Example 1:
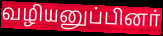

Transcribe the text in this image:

வழியனுப்பினர்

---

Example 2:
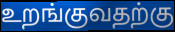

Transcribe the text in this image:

உறங்குவதற்கு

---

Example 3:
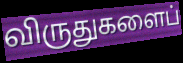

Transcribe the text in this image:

விருதுகளைப்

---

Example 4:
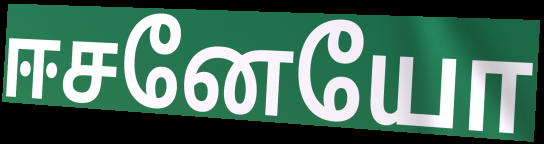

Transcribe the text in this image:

ஈசனேயோ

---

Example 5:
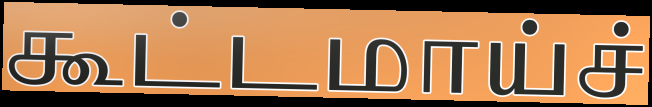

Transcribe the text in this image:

கூட்டமாய்ச்